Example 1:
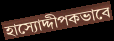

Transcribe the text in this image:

হাস্যোদ্দীপকভাবে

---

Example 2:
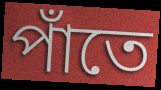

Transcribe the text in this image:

পাঁতে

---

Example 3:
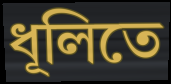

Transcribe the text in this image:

ধূলিতে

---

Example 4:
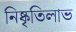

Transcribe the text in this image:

নিষ্কৃতিলাভ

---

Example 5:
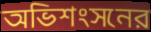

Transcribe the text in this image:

অভিশংসনের